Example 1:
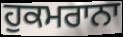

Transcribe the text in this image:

ਹੁਕਮਰਾਨਾ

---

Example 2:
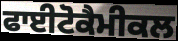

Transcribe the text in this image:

ਫਾਈਟੋਕੈਮੀਕਲ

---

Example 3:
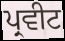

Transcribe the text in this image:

ਪ੍ਰਵੀਟ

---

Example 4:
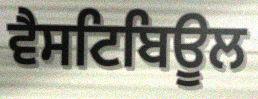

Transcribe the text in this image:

ਵੈਸਟਿਬਿਊਲ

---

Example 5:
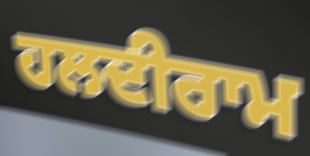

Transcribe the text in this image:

ਹਲਦੀਰਾਮ